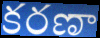
కరణా